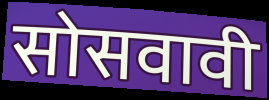
सोसवावी